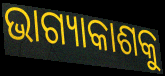
ଭାଗ୍ୟାକାଶକୁ